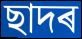
ছাদৰ